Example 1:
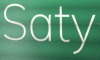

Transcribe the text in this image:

Saty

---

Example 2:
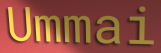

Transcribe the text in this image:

Ummai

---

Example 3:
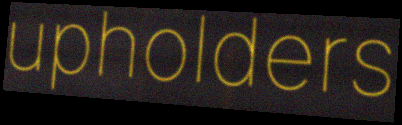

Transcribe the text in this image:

upholders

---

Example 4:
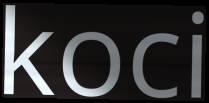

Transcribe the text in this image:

koci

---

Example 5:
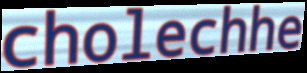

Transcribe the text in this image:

cholechhe